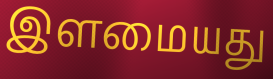
இளமையது